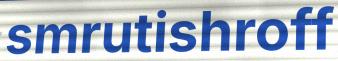
smrutishroff